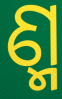
ଣ୍ମ